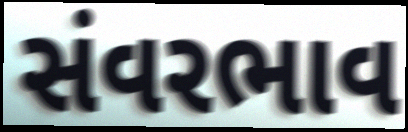
સંવરભાવ